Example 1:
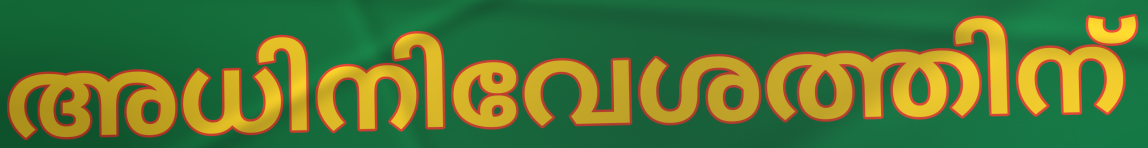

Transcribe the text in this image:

അധിനിവേശത്തിന്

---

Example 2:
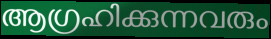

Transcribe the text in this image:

ആഗ്രഹിക്കുന്നവരും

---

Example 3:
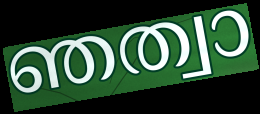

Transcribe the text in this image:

ഞത്വാ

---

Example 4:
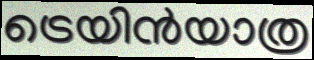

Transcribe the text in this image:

ട്രെയിൻയാത്ര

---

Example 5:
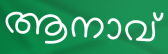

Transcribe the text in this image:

ആനാവ്